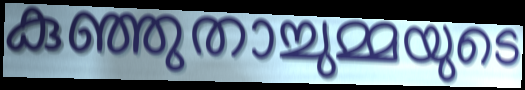
കുഞ്ഞുതാച്ചുമ്മയുടെ